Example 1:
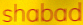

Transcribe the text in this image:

shabad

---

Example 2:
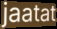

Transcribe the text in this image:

jaatat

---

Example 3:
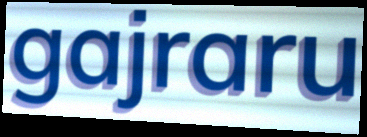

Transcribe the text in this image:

gajraru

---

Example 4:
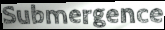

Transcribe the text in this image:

Submergence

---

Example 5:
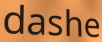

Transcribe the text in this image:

dashe